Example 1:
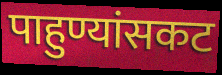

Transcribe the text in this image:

पाहुण्यांसकट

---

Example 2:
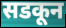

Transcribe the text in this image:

सडकून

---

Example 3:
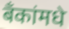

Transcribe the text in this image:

बँकांमधे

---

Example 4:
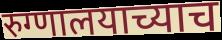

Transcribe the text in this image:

रुग्णालयाच्याच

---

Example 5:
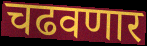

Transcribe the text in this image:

चढवणार